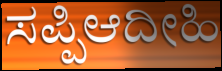
ಸಪ್ಪಿಆದೀಹಿ